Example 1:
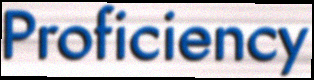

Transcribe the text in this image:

Proficiency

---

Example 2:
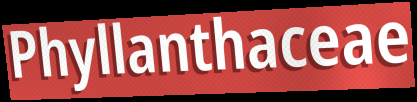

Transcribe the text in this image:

Phyllanthaceae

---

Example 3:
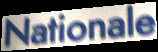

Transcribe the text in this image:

Nationale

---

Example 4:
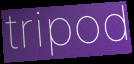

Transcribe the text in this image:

tripod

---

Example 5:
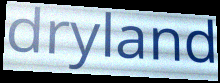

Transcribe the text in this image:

dryland